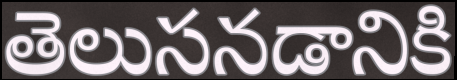
తెలుసనడానికి